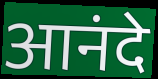
आनंदे